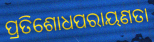
ପ୍ରତିଶୋଧପରାୟଣତା